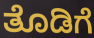
ತೊಡಿಗೆ